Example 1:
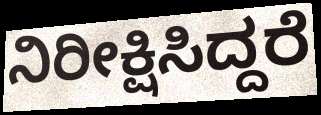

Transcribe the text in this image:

ನಿರೀಕ್ಷಿಸಿದ್ದರೆ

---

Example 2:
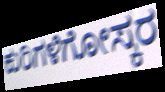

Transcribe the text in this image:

ಕುರಿಗಳಿಗೋಸ್ಕರ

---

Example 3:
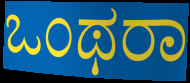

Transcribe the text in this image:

ಒಂಥರಾ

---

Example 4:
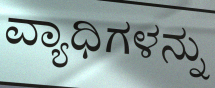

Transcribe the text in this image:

ವ್ಯಾಧಿಗಳನ್ನು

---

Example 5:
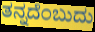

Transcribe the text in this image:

ತನ್ನದೆಂಬುದು